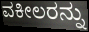
ವಕೀಲರನ್ನು